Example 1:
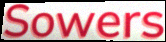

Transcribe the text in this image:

Sowers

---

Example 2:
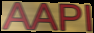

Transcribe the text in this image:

AAPI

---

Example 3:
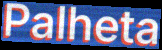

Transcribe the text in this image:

Palheta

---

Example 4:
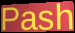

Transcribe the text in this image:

Pash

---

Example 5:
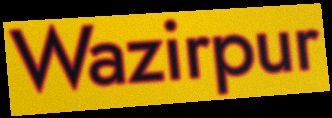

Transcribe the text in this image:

Wazirpur